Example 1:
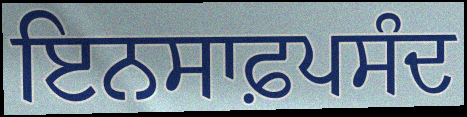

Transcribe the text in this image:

ਇਨਸਾਫ਼ਪਸੰਦ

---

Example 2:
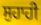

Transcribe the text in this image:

ਸੁਹਾਹੀ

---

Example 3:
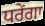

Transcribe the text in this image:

ਧਰੇਂਗਾ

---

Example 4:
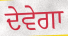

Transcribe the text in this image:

ਦੇਵੇਗਾ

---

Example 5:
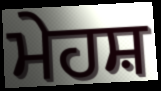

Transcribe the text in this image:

ਮੇਹਸ਼